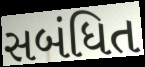
સબંધિત